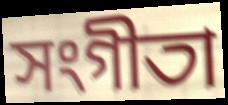
সংগীতা